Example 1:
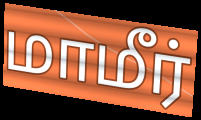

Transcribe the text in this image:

மாமீர்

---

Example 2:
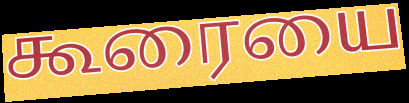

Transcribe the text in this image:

கூரையை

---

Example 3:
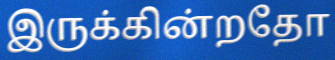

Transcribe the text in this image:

இருக்கின்றதோ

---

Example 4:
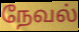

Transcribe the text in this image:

நேவல்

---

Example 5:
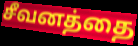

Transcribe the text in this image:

சீவனத்தை